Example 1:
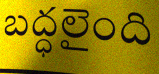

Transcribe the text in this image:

బద్ధలైంది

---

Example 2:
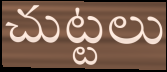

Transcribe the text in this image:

చుట్టలు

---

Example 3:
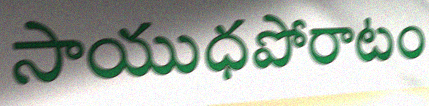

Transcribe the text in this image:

సాయుధపోరాటం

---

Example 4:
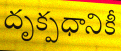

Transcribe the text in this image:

దృక్పధానికీ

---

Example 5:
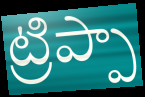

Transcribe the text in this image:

ట్రిప్పా